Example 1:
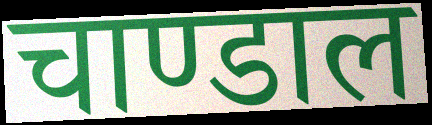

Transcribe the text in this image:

चाण्डाल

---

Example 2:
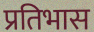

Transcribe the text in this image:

प्रतिभास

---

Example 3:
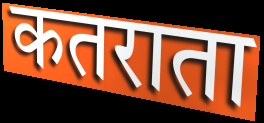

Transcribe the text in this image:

कतराता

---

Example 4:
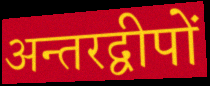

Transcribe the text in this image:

अन्तरद्वीपों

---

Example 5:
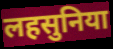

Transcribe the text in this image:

लहसुनिया